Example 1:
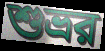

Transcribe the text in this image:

শুভ্রর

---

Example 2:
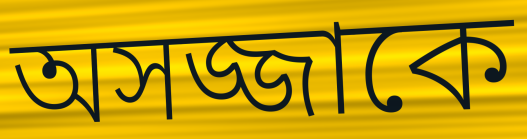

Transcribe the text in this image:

অসজ্জাকে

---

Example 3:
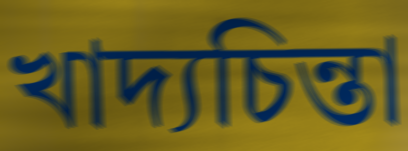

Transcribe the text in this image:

খাদ্যচিন্তা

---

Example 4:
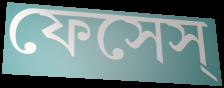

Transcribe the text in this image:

ফেসেস্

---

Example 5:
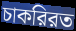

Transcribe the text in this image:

চাকরিরত